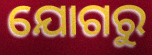
ଯୋଗରୁ